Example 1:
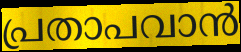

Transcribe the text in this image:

പ്രതാപവാൻ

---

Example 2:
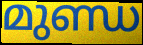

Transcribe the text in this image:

മുണ്ഡ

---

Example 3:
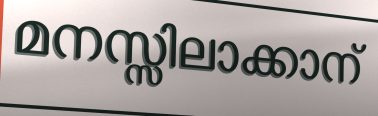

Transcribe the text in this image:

മനസ്സിലാക്കാന്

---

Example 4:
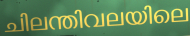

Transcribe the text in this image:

ചിലന്തിവലയിലെ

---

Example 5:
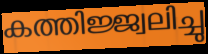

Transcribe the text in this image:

കത്തിജ്ജ്വലിച്ചു